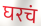
घरचं